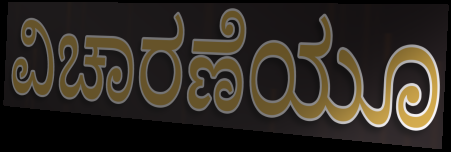
ವಿಚಾರಣೆಯೂ